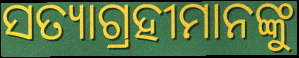
ସତ୍ୟାଗ୍ରହୀମାନଙ୍କୁ